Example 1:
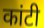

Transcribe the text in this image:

कांटी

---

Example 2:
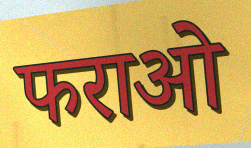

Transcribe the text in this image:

फराओ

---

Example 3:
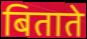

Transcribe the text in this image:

बिताते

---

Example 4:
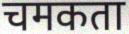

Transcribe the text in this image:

चमकता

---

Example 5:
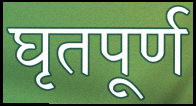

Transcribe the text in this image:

घृतपूर्ण